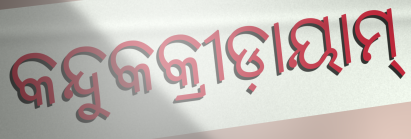
କନ୍ଦୁକକ୍ରୀଡ଼ାୟାମ୍